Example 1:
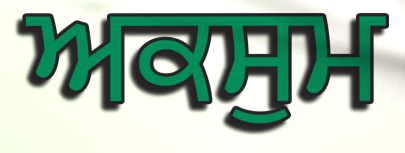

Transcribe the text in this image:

ਅਕਸੁਮ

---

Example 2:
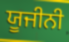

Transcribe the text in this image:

ਯੂਜੀਨੀ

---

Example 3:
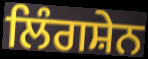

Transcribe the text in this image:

ਲਿੰਗਸ਼ੇਨ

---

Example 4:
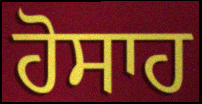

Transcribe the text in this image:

ਹੋਸਾਹ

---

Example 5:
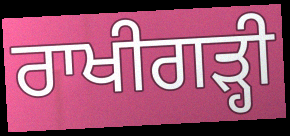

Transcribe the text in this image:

ਰਾਖੀਗੜ੍ਹੀ